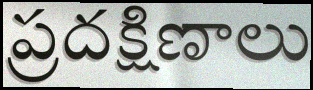
ప్రదక్షిణాలు